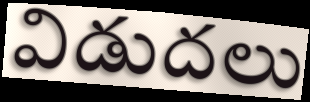
విడుదలు